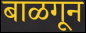
बाळगून